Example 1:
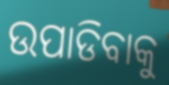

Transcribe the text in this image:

ଉପାଡିବାକୁ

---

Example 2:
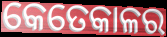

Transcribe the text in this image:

କେତେକାଳର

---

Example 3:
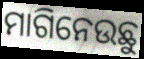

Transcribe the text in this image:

ମାଗିନେଉଛୁ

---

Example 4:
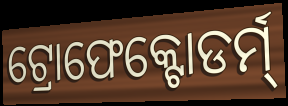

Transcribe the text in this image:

ଟ୍ରୋଫେକ୍ଟୋଡର୍ମ୍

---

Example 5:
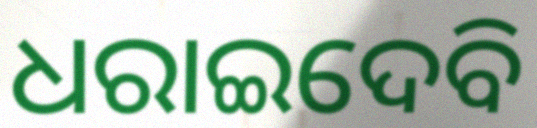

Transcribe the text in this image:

ଧରାଇଦେବି